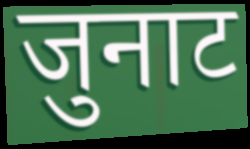
जुनाट